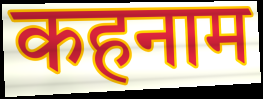
कहनाम